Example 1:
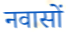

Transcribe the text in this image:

नवासों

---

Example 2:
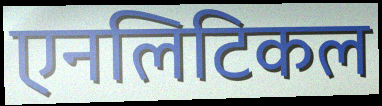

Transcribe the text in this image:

एनलिटिकल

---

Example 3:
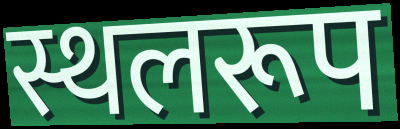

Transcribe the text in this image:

स्थलरूप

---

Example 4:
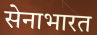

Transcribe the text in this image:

सेनाभारत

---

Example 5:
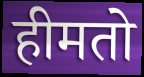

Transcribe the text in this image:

हीमतो